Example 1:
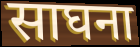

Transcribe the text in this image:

साघना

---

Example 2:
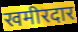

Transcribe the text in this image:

खमीरदार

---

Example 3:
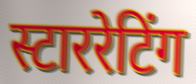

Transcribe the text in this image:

स्टाररेटिंग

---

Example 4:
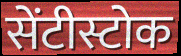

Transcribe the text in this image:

सेंटीस्टोक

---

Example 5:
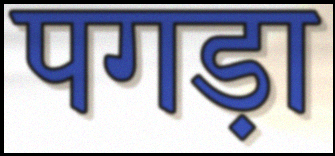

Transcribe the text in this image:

पगड़ा